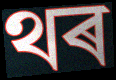
থৰ